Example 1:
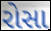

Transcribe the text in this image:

રોસા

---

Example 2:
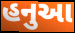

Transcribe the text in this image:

હનુઆ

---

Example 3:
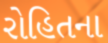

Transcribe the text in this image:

રોહિતના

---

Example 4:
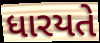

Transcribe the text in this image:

ધારયતે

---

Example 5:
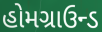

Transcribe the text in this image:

હોમગ્રાઉન્ડ